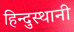
हिन्दुस्थानी